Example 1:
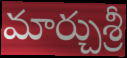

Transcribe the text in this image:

మార్చుశ్రీ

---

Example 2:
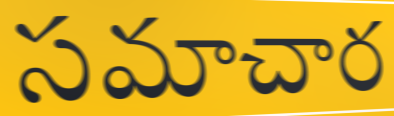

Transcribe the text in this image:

సమాచార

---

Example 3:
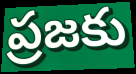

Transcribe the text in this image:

ప్రజకు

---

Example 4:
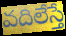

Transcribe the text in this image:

వదిలేస్తే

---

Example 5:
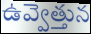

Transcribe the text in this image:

ఉవ్వెత్తున